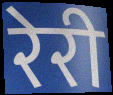
रेरी